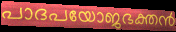
പാദപയോജഭക്തൻ